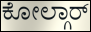
ಕೋಲ್ಗಾರ್